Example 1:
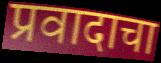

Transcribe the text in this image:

प्रवादाचा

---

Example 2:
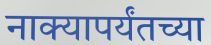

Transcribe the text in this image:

नाक्यापर्यंतच्या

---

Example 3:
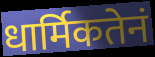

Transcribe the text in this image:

धार्मिकतेनं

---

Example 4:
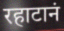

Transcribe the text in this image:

रहाटानं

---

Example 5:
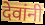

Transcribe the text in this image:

देवांनी